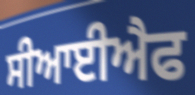
ਸੀਆਈਐਫ